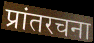
प्रांतरचना